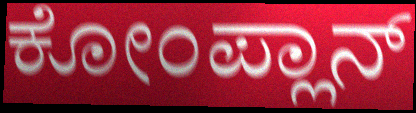
ಕೋಂಪ್ಲಾನ್